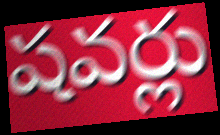
షవర్లు